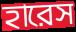
হারেস